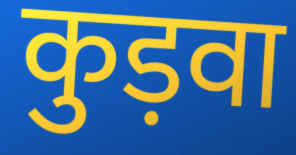
कुड़वा